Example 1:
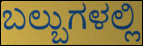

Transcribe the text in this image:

ಬಲ್ಬುಗಳಲ್ಲಿ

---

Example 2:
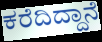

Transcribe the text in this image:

ಕರೆದಿದ್ದಾನೆ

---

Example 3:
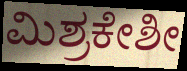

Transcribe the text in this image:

ಮಿಶ್ರಕೇಶೀ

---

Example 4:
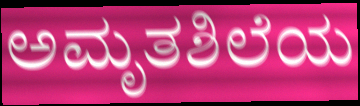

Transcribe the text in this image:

ಅಮೃತಶಿಲೆಯ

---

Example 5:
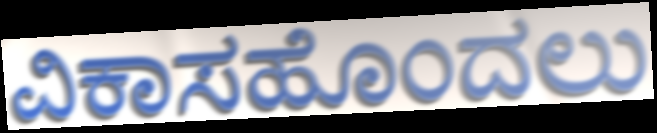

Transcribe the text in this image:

ವಿಕಾಸಹೊಂದಲು